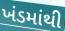
ખંડમાંથી